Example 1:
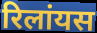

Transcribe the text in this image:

रिलांयस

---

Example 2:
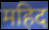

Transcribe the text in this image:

महिद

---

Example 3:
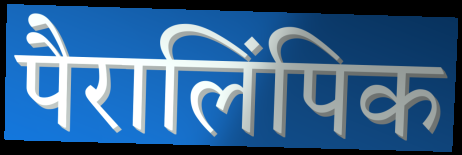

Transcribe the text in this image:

पैरालिंपिक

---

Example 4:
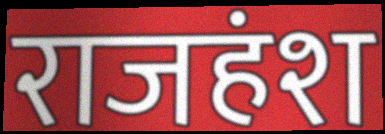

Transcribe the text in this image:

राजहंश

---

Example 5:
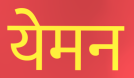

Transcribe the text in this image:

येमन